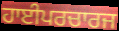
ਹਾਈਪਰਚਾਰਜ